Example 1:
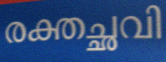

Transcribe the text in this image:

രക്തച്ഛവി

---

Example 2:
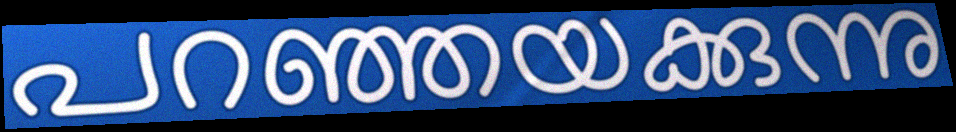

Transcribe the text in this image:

പറഞ്ഞയക്കുന്നു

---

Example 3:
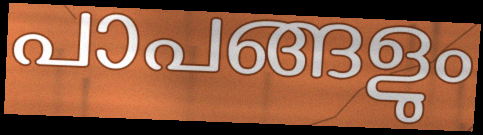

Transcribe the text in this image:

പാപങ്ങളും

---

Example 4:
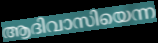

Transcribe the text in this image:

ആദിവാസിയെന്ന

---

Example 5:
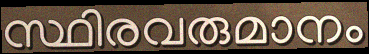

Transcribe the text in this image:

സ്ഥിരവരുമാനം